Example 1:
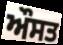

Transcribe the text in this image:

ਔਸਤ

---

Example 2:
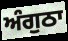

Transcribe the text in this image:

ਅੰਗੁਠਾ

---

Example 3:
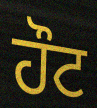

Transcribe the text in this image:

ਹੌਟ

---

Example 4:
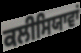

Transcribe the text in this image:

ਕਲੀਸਿਯਾਵਾਂ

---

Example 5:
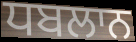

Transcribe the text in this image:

ਧਬਲਾਨ